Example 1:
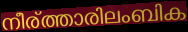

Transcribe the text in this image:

നീര്ത്താരിലംബിക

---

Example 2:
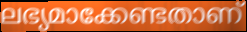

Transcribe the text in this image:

ലഭ്യമാക്കേണ്ടതാണ്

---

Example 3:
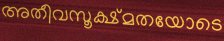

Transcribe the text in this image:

അതീവസൂക്ഷ്മതയോടെ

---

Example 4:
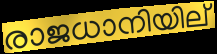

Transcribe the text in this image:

രാജധാനിയില്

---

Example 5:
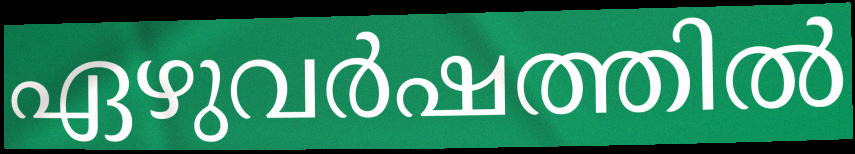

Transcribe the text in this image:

ഏഴുവർഷത്തിൽ